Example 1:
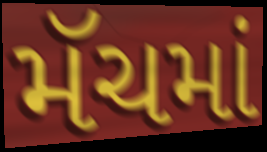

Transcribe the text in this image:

મૅચમાં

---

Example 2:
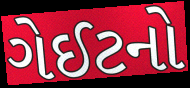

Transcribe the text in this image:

ગેઈટનો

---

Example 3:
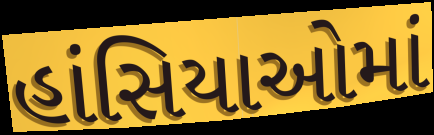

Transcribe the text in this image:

હાંસિયાઓમાં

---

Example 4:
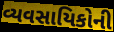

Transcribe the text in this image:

વ્યવસાયિકોની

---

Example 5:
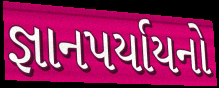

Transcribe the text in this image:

જ્ઞાનપર્યાયનો